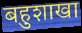
बहुशाखा